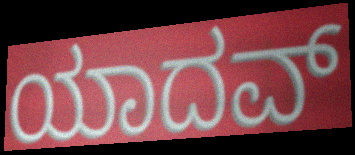
ಯಾದವ್